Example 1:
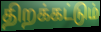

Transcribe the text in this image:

திறக்கட்டும்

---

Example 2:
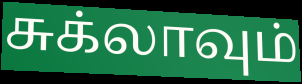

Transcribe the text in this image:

சுக்லாவும்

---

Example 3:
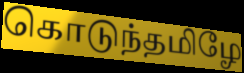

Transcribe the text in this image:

கொடுந்தமிழே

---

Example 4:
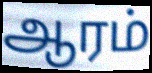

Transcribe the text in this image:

ஆரம்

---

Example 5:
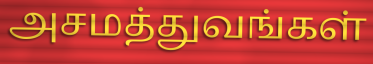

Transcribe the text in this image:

அசமத்துவங்கள்